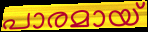
പാരമായ്